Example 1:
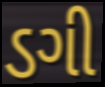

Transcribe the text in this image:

ડગી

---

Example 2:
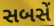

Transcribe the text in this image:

સબસેં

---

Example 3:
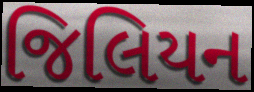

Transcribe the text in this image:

જિલિયન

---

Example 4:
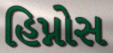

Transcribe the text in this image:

હિપ્નોસ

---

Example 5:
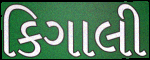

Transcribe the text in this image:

કિગાલી